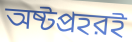
অষ্টপ্রহরই